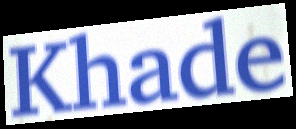
Khade